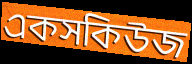
একসকিউজ